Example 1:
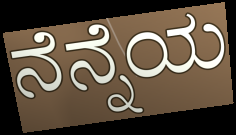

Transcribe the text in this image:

ನೆನ್ನೆಯ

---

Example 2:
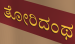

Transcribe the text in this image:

ತೋರಿದಂಥ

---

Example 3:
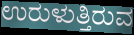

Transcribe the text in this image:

ಉರುಳುತ್ತಿರುವ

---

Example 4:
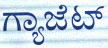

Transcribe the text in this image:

ಗ್ಯಾಜೆಟ್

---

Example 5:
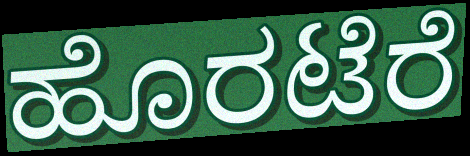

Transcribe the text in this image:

ಹೊರಟೆರೆ